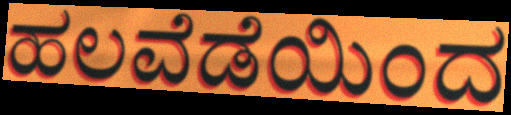
ಹಲವೆಡೆಯಿಂದ